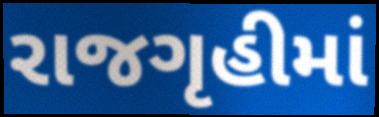
રાજગૃહીમાં